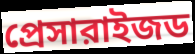
প্রেসারাইজড